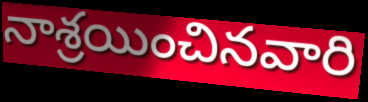
నాశ్రయించినవారి